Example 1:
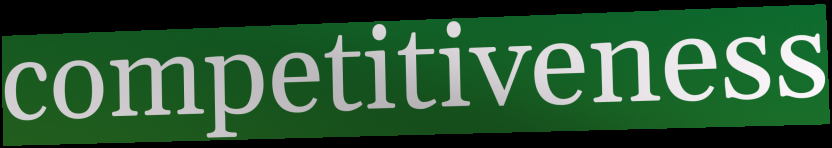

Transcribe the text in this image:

competitiveness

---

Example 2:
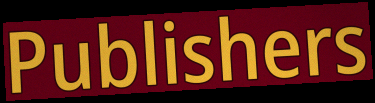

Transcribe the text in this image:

Publishers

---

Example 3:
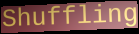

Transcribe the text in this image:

Shuffling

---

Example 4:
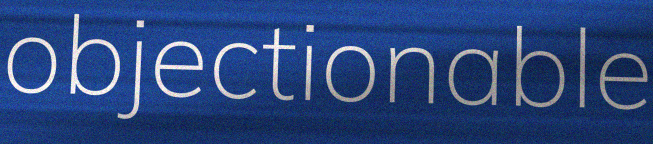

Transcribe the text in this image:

objectionable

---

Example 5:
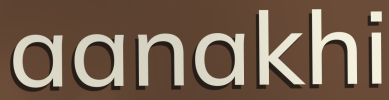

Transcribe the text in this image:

aanakhi